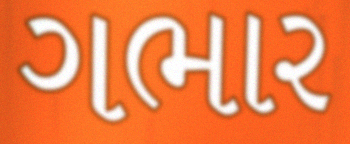
ગભાર